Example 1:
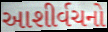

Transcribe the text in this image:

આશીર્વચનો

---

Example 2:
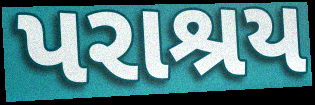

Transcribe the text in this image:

પરાશ્રય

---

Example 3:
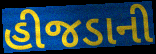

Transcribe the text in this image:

હીજડાની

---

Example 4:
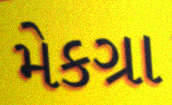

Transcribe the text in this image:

મેકગ્રા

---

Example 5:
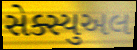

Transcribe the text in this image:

સેક્સ્યુઅલ